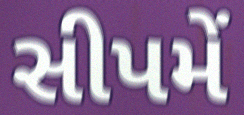
સીપમેં